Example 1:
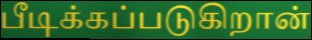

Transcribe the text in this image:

பீடிக்கப்படுகிறான்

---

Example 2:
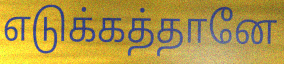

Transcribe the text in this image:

எடுக்கத்தானே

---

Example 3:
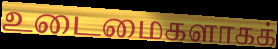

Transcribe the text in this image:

உடைமைகளாகக்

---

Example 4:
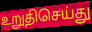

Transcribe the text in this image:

உறுதிசெய்து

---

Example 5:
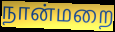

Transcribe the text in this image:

நான்மறை